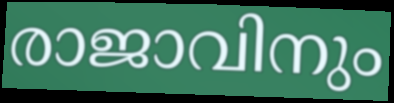
രാജാവിനും